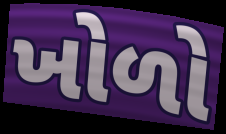
ખોળો